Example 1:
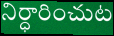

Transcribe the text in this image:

నిర్ధారించుట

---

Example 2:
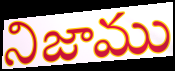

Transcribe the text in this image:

నిజాము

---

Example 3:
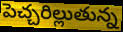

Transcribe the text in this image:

పెచ్చరిల్లుతున్న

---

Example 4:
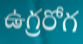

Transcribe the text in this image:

ఉగ్రరోగ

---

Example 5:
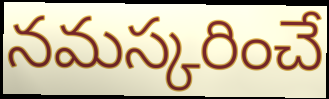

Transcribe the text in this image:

నమస్కరించే